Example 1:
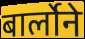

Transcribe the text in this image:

बार्लोने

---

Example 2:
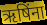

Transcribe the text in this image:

ऋषिंना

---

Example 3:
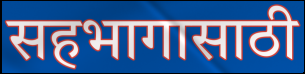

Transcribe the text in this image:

सहभागासाठी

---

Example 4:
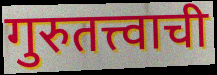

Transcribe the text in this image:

गुरुतत्त्वाची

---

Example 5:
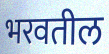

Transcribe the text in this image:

भरवतील